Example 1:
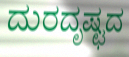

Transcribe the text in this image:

ದುರದೃಷ್ಟದ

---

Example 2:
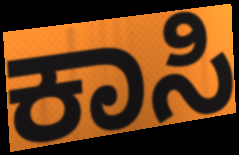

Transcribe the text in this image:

ಕಾಸಿ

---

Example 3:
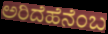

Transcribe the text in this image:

ಅರಿದೆಹೆನೆಂಬ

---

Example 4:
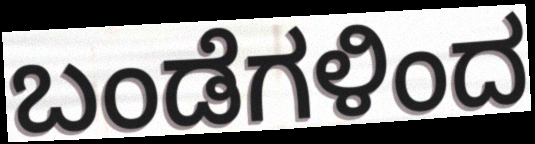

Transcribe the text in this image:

ಬಂಡೆಗಳಿಂದ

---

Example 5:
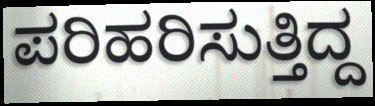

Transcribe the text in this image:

ಪರಿಹರಿಸುತ್ತಿದ್ದ